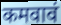
कमवावं